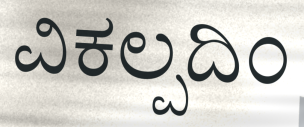
ವಿಕಲ್ಪದಿಂ